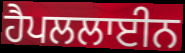
ਹੈਪਲਲਾਈਨ